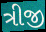
ત્રીજી